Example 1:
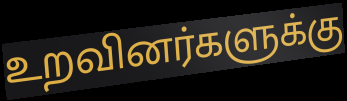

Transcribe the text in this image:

உறவினர்களுக்கு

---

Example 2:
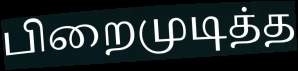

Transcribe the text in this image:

பிறைமுடித்த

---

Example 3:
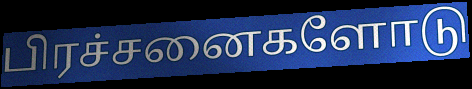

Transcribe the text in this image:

பிரச்சனைகளோடு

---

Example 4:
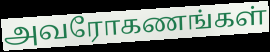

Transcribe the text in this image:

அவரோகணங்கள்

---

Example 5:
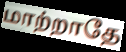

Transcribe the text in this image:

மாற்றாதே